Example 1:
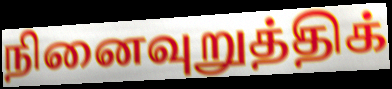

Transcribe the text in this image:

நினைவுறுத்திக்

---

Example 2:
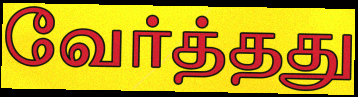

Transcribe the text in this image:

வேர்த்தது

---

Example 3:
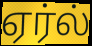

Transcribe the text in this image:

ஏர்ல்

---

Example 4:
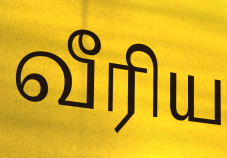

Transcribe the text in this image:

வீரிய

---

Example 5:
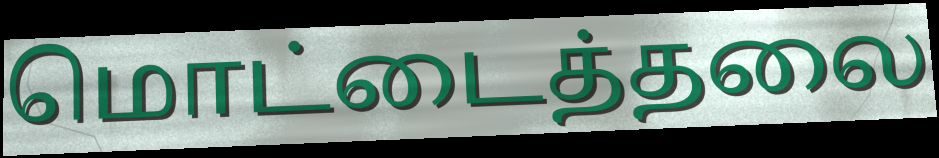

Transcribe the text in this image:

மொட்டைத்தலை